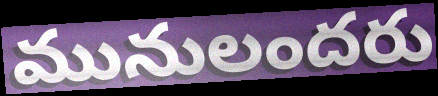
మునులందరు